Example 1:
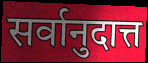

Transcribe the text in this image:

सर्वानुदात्त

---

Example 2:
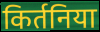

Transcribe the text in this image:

किर्तनिया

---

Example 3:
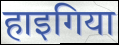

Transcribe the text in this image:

हाइगिया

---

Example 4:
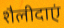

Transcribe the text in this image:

शैलीदाएं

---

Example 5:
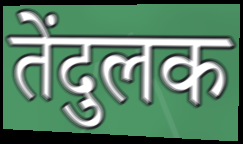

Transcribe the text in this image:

तेंदुलक